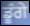
ਡੂੰਗੇ